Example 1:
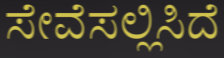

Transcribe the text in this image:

ಸೇವೆಸಲ್ಲಿಸಿದೆ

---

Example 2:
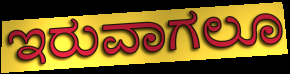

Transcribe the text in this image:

ಇರುವಾಗಲೂ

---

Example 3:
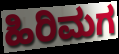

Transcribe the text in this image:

ಹಿರಿಮಗ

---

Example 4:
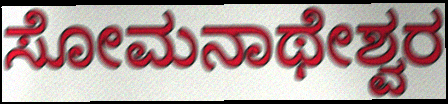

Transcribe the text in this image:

ಸೋಮನಾಥೇಶ್ವರ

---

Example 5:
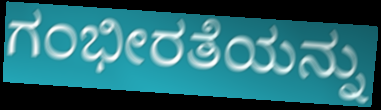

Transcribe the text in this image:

ಗಂಭೀರತೆಯನ್ನು